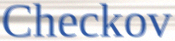
Checkov